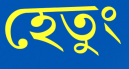
হেতুং